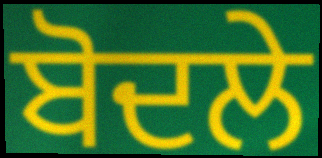
ਬੋਦਲੇ